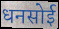
धनसोई